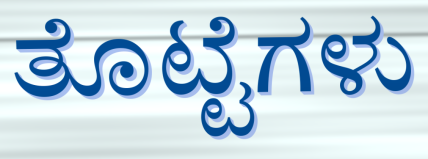
ತೊಟ್ಟೆಗಳು